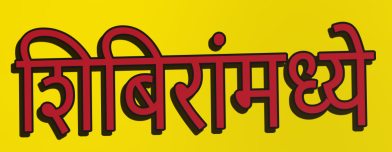
शिबिरांमध्ये